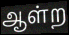
ஆள்ற